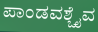
ಪಾಂಡವಶ್ಚೈವ